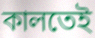
কালতেই